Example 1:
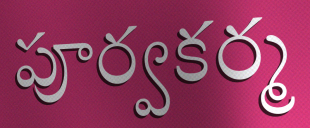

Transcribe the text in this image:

పూర్వకర్మ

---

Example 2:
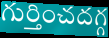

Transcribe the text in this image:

గుర్తించదగ్గ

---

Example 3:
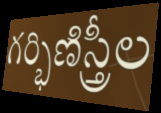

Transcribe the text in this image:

గర్భిణిస్త్రీల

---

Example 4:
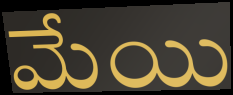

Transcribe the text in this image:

మేయి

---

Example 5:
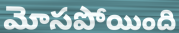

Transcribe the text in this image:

మోసపోయింది